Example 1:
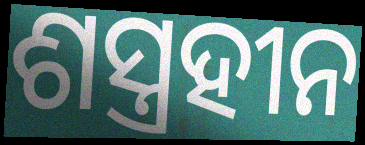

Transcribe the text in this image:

ଶସ୍ତ୍ରହୀନ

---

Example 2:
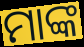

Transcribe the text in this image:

ମାଙ୍କ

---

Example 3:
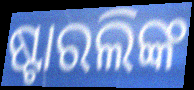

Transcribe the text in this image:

ଷ୍ଟାରଲିଙ୍କ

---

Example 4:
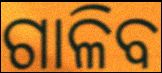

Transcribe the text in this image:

ଗାଳିବ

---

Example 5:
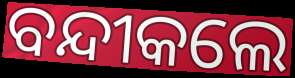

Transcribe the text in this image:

ବନ୍ଦୀକଲେ